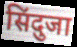
सिंदुजा